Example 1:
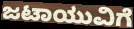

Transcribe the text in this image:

ಜಟಾಯುವಿಗೆ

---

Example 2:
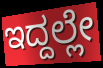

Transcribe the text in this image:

ಇದ್ದಲ್ಲೇ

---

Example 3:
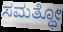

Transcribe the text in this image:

ಸಮತ್ಥೋ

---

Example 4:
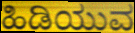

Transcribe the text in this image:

ಹಿಡಿಯುವ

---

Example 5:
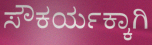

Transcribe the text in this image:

ಸೌಕರ್ಯಕ್ಕಾಗಿ